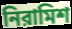
নিরামিশ